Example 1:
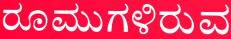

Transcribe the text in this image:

ರೂಮುಗಳಿರುವ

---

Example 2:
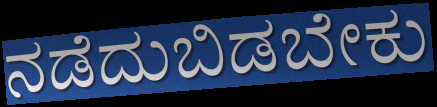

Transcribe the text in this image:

ನಡೆದುಬಿಡಬೇಕು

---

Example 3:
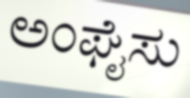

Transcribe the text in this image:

ಅಂಘೈಸು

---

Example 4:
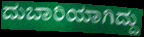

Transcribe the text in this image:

ದುಬಾರಿಯಾಗಿದ್ದು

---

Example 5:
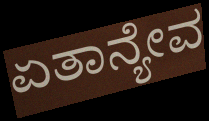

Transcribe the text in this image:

ಏತಾನ್ಯೇವ